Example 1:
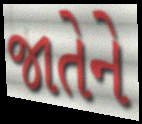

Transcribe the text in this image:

જાતેને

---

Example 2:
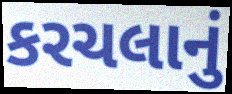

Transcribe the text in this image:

કરચલાનું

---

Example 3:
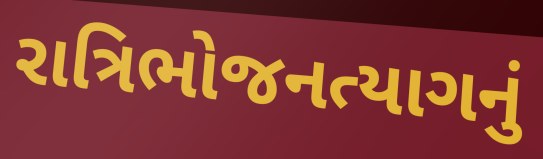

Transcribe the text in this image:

રાત્રિભોજનત્યાગનું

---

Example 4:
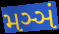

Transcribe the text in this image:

મઞ્ઞં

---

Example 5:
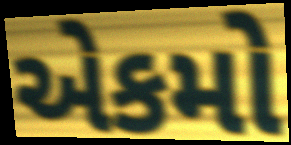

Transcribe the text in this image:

એકમો